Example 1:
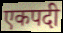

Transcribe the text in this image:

एकपदी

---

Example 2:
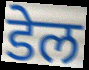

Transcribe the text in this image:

डेल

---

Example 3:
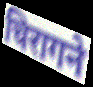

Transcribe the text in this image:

चिरागने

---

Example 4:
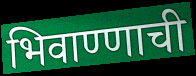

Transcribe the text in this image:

भिवाण्णाची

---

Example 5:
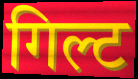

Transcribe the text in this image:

गिल्ट